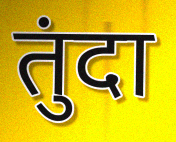
तुंदा